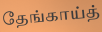
தேங்காய்த்